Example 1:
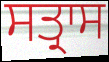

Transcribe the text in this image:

ਸਤ੍ਰਾਸ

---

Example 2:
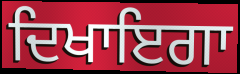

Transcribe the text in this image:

ਦਿਖਾਇਗਾ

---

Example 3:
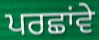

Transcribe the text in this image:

ਪਰਛਾਂਵੇ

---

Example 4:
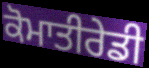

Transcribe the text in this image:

ਕੋਮਾਤੀਰੇਡੀ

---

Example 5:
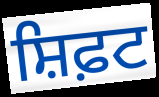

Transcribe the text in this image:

ਸ਼ਿਫ਼ਟ